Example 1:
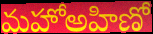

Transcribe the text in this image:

మహోఅహిణో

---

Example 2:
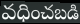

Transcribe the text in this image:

వధించబడి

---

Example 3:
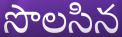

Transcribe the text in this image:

సొలసిన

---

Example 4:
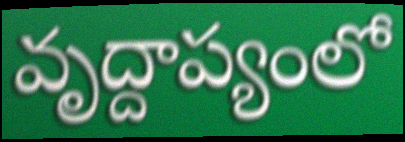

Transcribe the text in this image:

వృద్దాప్యంలో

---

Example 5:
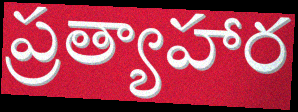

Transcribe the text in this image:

ప్రత్యాహార